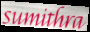
sumithra